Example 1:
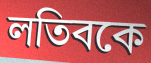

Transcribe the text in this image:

লতিবকে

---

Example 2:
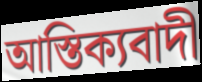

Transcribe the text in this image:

আস্তিক্যবাদী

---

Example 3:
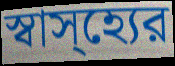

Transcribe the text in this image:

স্বাস্হ্যের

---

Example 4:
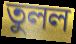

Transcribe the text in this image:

তুলল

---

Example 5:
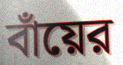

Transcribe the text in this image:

বাঁয়ের